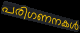
പരിഗണനകൾ